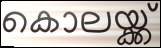
കൊലയ്ക്ക്